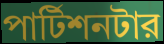
পার্টিশনটার